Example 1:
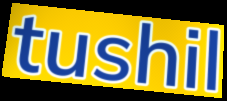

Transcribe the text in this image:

tushil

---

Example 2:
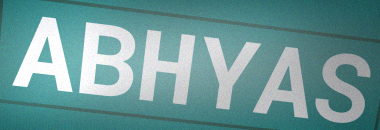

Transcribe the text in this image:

ABHYAS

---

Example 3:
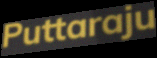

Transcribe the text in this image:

Puttaraju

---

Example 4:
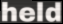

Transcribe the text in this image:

held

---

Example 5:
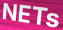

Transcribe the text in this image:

NETs